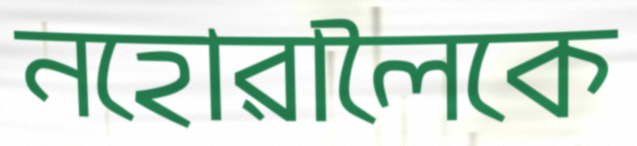
নহোৱালৈকে